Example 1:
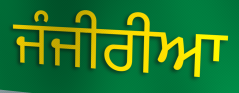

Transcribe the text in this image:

ਜੰਜੀਰੀਆ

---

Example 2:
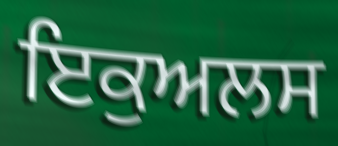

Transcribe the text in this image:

ਇਕੁਅਲਸ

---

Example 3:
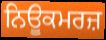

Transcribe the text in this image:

ਨਿਊਕਮਰਜ਼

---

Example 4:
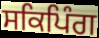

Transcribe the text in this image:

ਸਕਿਪਿੰਗ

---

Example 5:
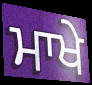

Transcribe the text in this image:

ਮਾਖੇ